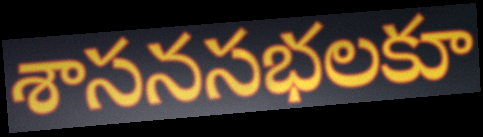
శాసనసభలకూ